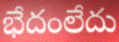
భేదంలేదు